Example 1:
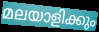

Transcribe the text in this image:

മലയാളിക്കും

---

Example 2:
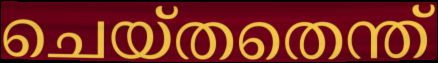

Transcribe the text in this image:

ചെയ്തതെന്ത്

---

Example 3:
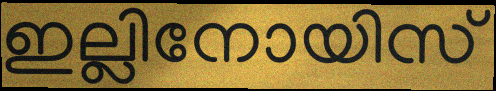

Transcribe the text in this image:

ഇല്ലിനോയിസ്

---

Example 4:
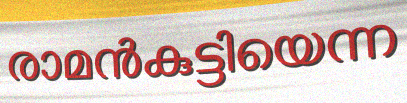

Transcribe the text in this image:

രാമൻകുട്ടിയെന്ന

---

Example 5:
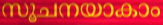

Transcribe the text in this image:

സൂചനയാകാം